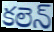
కలెన్